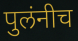
पुलंनीच